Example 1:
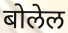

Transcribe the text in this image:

बोलेल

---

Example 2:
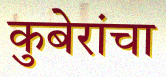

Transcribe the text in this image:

कुबेरांचा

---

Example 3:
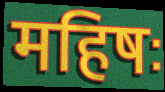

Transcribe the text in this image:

महिषः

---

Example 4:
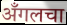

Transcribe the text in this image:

अँगलचा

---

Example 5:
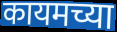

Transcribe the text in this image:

कायमच्या